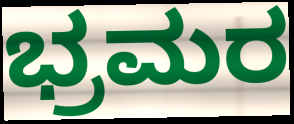
ಭ್ರಮರ